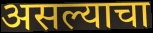
असल्याचा